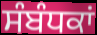
ਸੰਬੰਧਕਾਂ